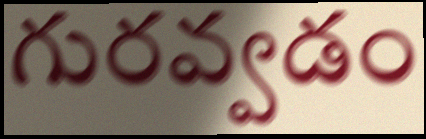
గురవ్వడం